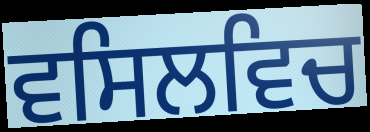
ਵਸਿਲਵਿਚ